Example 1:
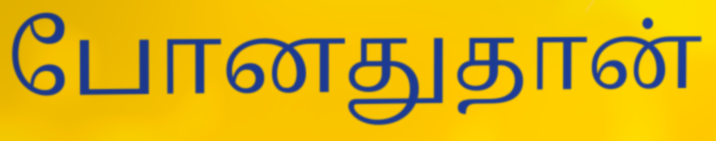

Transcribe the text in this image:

போனதுதான்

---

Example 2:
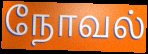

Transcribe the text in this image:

நோவல்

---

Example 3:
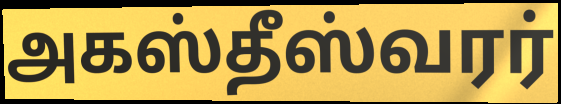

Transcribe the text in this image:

அகஸ்தீஸ்வரர்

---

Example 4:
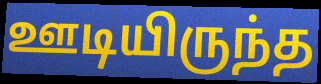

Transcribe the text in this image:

ஊடியிருந்த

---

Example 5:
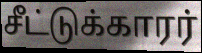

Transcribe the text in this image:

சீட்டுக்காரர்